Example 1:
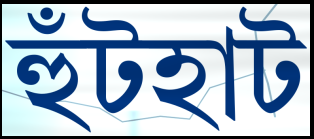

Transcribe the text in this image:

হুঁটহাট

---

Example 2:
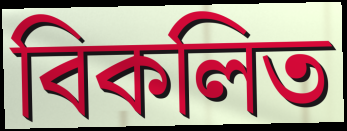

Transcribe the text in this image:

বিকলিত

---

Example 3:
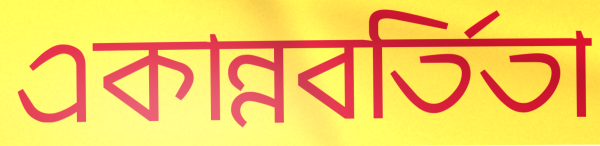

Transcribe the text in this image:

একান্নবর্তিতা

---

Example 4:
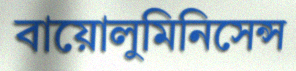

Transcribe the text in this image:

বায়োলুমিনিসেন্স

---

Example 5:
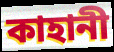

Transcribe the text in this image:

কাহানী